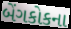
બેંગકોકના